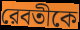
রেবতীকে